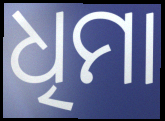
ଧିମା